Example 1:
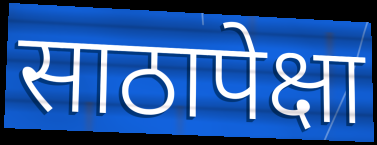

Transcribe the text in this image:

साठापेक्षा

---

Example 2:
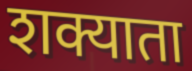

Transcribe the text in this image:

शक्याता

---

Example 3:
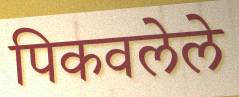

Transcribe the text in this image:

पिकवलेले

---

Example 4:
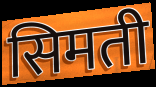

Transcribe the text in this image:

सिमती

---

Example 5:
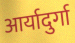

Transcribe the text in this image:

आर्यादुर्गा